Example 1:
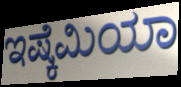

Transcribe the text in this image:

ಇಷ್ಕೆಮಿಯಾ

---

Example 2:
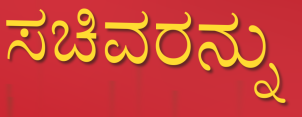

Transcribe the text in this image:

ಸಚಿವರನ್ನು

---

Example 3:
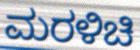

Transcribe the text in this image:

ಮರಳಿಚಿ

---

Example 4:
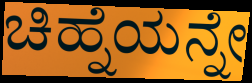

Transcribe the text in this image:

ಚಿಹ್ನೆಯನ್ನೇ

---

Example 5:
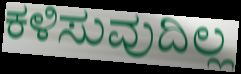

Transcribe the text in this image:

ಕಳಿಸುವುದಿಲ್ಲ